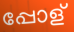
പ്പോള്